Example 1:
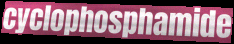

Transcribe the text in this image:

cyclophosphamide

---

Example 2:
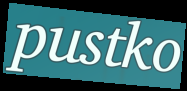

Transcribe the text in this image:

pustko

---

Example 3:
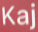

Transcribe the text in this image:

Kaj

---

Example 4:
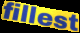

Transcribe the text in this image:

fillest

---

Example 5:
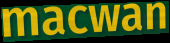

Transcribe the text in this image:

macwan